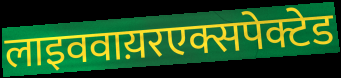
लाइववाय़रएक्सपेक्टेड